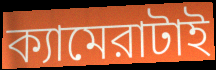
ক্যামেরাটাই